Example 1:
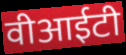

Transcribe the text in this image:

वीआईटी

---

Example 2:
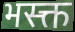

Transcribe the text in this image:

भस्क्त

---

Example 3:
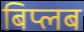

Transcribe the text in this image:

बिप्लब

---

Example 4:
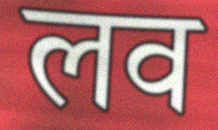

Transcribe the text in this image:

लव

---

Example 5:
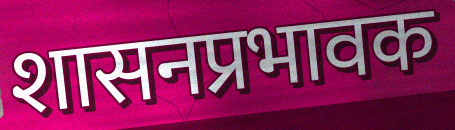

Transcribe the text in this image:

शासनप्रभावक